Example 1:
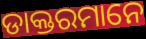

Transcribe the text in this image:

ଡାକ୍ତରମାନେ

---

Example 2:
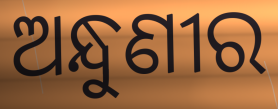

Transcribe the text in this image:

ଅନ୍ଧୁଣୀର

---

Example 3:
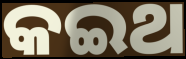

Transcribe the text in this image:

କଇଥ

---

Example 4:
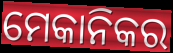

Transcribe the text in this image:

ମେକାନିକର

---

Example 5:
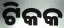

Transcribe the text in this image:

ଟିକକ